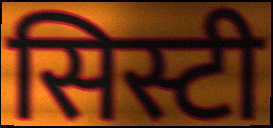
सिस्टी